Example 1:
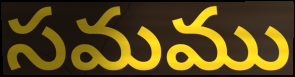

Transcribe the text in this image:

సమము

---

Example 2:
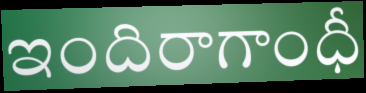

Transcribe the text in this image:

ఇందిరాగాంధీ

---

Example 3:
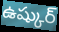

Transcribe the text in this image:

ఉష్కుర్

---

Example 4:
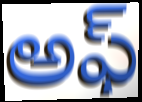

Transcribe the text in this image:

అఫ్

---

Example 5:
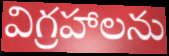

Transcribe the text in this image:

విగ్రహాలను